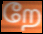
றே